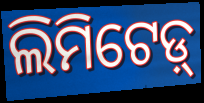
ଲିମିଟେଡ଼୍